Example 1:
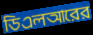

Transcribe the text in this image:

ডিএলআরের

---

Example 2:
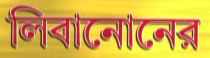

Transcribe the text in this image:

লিবানোনের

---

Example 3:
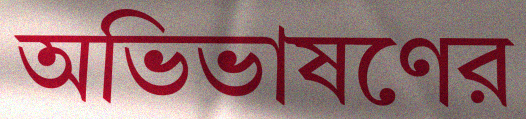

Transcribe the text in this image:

অভিভাষণের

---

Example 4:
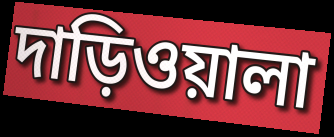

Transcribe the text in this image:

দাড়িওয়ালা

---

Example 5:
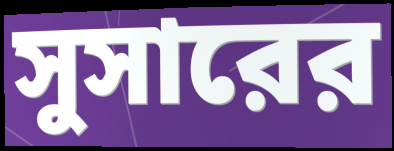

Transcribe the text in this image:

সুসারের